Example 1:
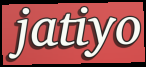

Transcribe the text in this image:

jatiyo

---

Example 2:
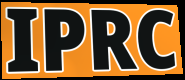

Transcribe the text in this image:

IPRC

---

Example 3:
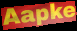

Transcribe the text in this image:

Aapke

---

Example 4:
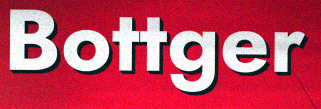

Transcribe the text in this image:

Bottger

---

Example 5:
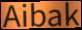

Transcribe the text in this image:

Aibak